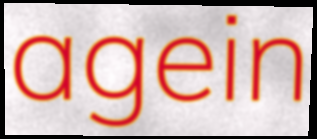
agein